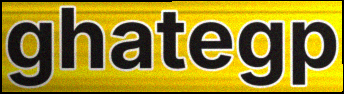
ghategp